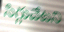
సిగ్గుచేటని